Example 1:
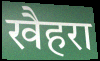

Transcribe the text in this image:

खैहरा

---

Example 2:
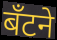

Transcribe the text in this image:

बँटने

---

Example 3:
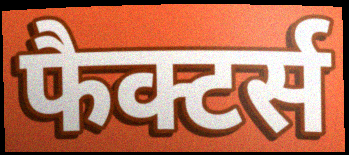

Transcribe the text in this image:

फैक्टर्स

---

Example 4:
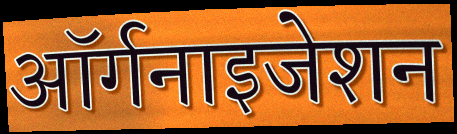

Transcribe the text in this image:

ऑर्गनाइजेशन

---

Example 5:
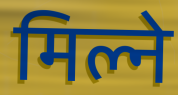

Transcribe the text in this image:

मिल्ने